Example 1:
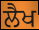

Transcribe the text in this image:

ਲੈਖ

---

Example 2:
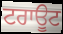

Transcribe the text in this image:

ਟਰਾਊਟ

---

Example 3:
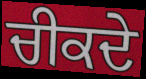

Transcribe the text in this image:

ਚੀਕਦੇ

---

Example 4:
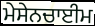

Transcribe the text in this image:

ਮੇਸੇਨਚਾਈਮ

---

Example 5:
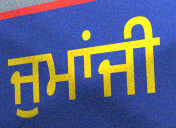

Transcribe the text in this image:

ਜੁਮਾਂਜੀ